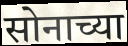
सोनाच्या